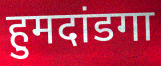
हुमदांडगा